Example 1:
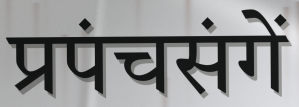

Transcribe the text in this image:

प्रपंचसंगें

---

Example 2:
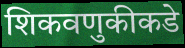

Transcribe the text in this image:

शिकवणुकीकडे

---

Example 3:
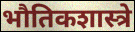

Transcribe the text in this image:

भौतिकशास्त्रे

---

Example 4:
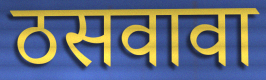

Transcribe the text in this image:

ठसवावा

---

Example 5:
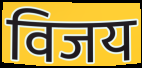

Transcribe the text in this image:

विजय